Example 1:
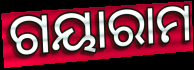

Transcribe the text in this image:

ଗୟାରାମ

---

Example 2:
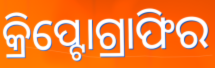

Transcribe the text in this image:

କ୍ରିପ୍ଟୋଗ୍ରାଫିର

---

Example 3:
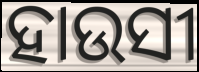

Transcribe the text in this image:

ହାଉସୀ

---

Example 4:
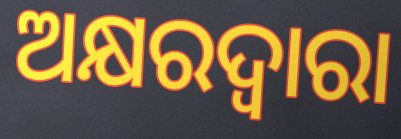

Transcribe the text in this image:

ଅକ୍ଷରଦ୍ଵାରା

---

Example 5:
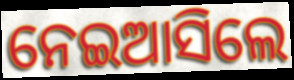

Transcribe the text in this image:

ନେଇଆସିଲେ